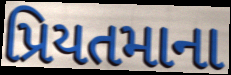
પ્રિયતમાના